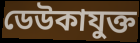
ডেউকাযুক্ত